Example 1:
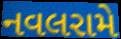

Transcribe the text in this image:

નવલરામે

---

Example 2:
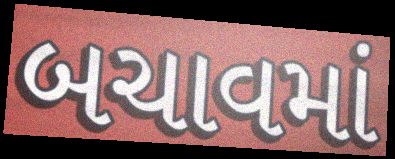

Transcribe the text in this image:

બચાવમાં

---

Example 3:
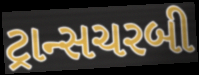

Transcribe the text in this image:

ટ્રાન્સચરબી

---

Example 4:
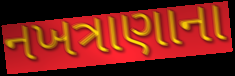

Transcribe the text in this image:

નખત્રાણાના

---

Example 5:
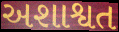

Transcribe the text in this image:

અશાશ્વત